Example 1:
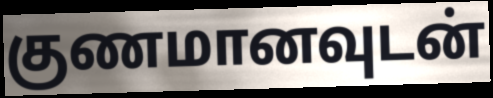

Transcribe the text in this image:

குணமானவுடன்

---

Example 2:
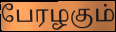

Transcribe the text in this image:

பேரழகும்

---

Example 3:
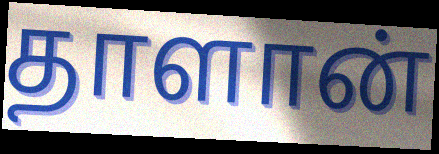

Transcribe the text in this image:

தாளான்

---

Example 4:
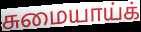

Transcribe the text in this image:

சுமையாய்க்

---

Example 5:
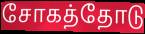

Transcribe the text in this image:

சோகத்தோடு